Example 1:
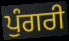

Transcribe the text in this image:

ਪੁੰਗਰੀ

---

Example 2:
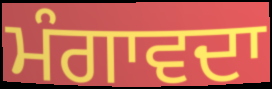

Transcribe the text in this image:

ਮੰਗਾਵਦਾ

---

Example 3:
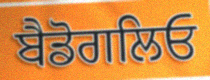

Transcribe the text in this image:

ਬੈਡੋਗਲਿਓ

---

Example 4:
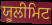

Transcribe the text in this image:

ਯੂਲੀਮਿਟ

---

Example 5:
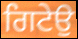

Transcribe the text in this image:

ਗਿਟੇਉ